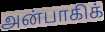
அன்பாகிக்